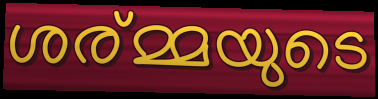
ശര്മ്മയുടെ